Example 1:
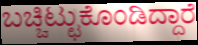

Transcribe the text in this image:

ಬಚ್ಚಿಟ್ಟುಕೊಂಡಿದ್ದಾರೆ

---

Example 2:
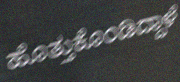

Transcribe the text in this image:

ಹೊತ್ತುಕೊಂಡಿದ್ದಾಳೆ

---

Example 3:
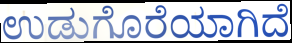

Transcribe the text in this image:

ಉಡುಗೊರೆಯಾಗಿದೆ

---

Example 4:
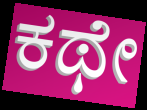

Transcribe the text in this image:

ಕಥೇ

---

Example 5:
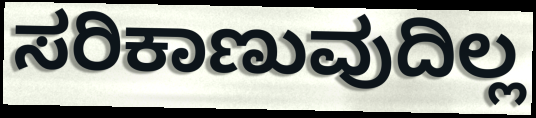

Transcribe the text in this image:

ಸರಿಕಾಣುವುದಿಲ್ಲ